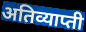
अतिव्याप्ती